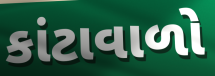
કાંટાવાળો